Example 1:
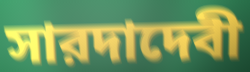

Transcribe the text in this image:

সারদাদেবী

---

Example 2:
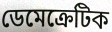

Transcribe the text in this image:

ডেমেক্রেটিক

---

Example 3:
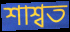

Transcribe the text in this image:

শাশ্বত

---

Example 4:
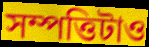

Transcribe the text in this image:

সম্পত্তিটাও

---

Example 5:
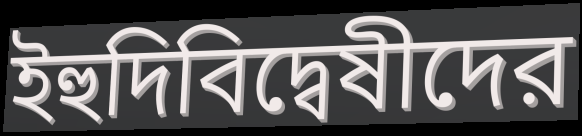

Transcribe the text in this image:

ইহুদিবিদ্বেষীদের